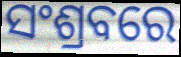
ସଂଶ୍ରବରେ